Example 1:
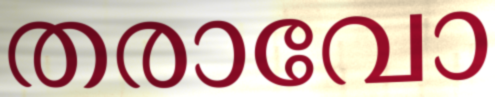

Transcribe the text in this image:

തരാവോ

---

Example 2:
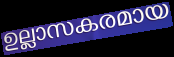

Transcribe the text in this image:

ഉല്ലാസകരമായ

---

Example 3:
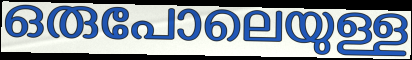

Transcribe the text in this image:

ഒരുപോലെയുള്ള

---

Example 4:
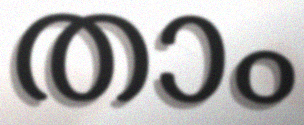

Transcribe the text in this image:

താം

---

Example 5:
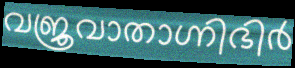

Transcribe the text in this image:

വജ്രവാതാഗ്നിഭിർ